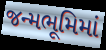
જન્મભૂમિમાં